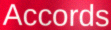
Accords